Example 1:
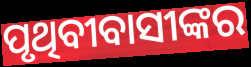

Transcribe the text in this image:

ପୃଥିବୀବାସୀଙ୍କର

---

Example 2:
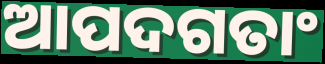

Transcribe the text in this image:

ଆପଦଗତାଂ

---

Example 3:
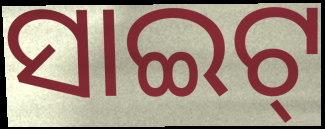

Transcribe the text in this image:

ସାଇଟ୍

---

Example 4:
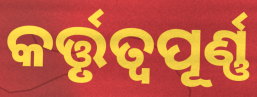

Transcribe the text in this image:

କର୍ତ୍ତୃତ୍ୱପୂର୍ଣ୍ଣ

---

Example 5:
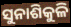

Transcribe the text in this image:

ସୁନାଶିକୁଳି